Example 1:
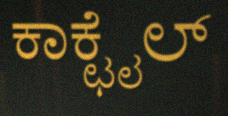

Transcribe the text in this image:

ಕಾಕ್ಟೈಲ್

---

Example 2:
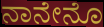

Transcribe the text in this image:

ನಾನೇನೊ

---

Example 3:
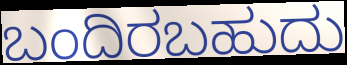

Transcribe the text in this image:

ಬಂದಿರಬಹುದು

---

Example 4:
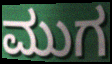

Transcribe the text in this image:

ಮುಗ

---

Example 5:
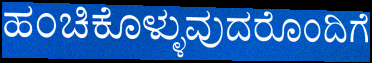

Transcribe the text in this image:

ಹಂಚಿಕೊಳ್ಳುವುದರೊಂದಿಗೆ